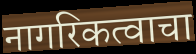
नागरिकत्वाचा